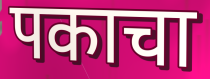
पकाचा